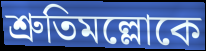
শ্রুতিমল্লোকে